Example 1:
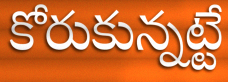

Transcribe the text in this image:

కోరుకున్నట్టే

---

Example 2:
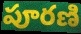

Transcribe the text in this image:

పూరణి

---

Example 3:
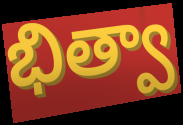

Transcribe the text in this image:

భిత్వా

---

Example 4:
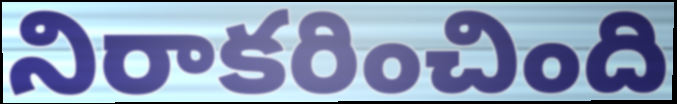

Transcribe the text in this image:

నిరాకరించింది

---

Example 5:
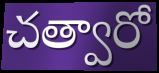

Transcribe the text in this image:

చత్వారో